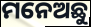
ମନେଅଛୁ